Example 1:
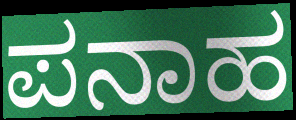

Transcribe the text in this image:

ಪನಾಹ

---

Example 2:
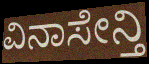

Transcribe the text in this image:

ವಿನಾಸೇನ್ತಿ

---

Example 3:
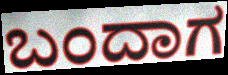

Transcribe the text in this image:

ಬಂದಾಗ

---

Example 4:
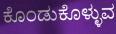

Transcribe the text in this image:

ಕೊಂಡುಕೊಳ್ಳುವ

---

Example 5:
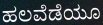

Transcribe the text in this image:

ಹಲವೆಡೆಯೂ